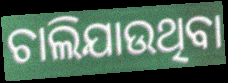
ଚାଲିଯାଉଥିବା